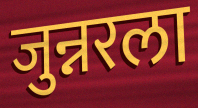
जुन्नरला